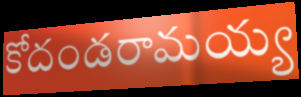
కోదండరామయ్య